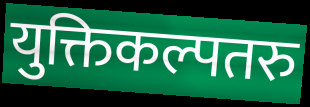
युक्तिकल्पतरु